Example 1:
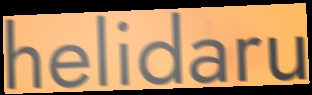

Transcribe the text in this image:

helidaru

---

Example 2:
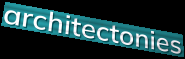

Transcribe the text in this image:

architectonies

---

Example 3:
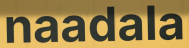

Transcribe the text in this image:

naadala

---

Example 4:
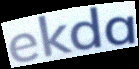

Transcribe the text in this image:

ekda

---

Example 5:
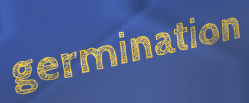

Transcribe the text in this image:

germination